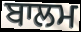
ਬਾਲਮ